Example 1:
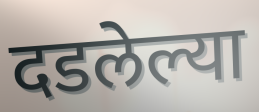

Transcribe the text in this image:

दडलेल्या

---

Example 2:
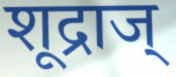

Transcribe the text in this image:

शूद्राज्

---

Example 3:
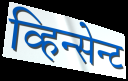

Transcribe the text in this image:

व्हिन्सेन्ट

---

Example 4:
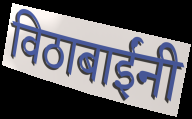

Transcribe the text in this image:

विठाबाईंनी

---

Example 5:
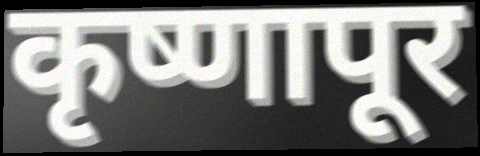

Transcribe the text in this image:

कृष्णापूर